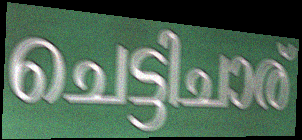
ചെട്ടിചാര്